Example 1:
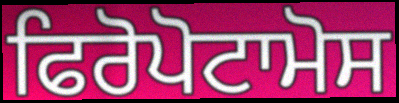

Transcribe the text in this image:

ਫਿਰੋਪੋਟਾਮੋਸ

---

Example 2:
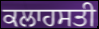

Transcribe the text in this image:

ਕਲਾਹਸਤੀ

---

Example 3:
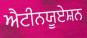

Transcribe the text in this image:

ਐਟੀਨਯੂਏਸ਼ਨ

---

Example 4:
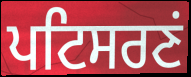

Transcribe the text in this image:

ਪਟਿਸਰਣਂ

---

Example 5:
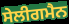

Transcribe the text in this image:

ਸੇਲੀਗਮੈਨ